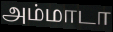
அம்மாடா